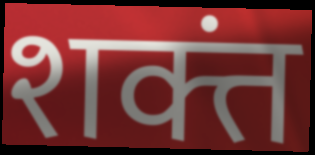
शक्तं